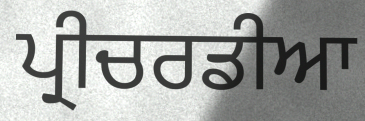
ਪ੍ਰੀਚਰਡੀਆ